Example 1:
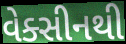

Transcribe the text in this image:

વેક્સીનથી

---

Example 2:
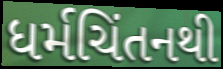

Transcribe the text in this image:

ધર્મચિંતનથી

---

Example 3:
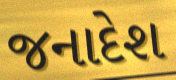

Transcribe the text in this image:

જનાદેશ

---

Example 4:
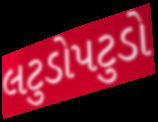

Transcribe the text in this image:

લટુડોપટુડો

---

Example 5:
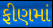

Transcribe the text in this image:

ફીણમાં